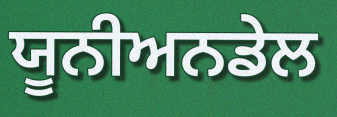
ਯੂਨੀਅਨਡੇਲ